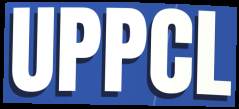
UPPCL